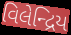
વિલેન્દ્રિય